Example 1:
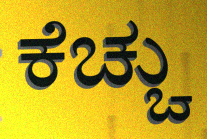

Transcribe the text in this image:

ಕೆಚ್ಚು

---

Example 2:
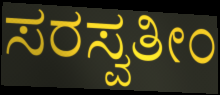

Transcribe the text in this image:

ಸರಸ್ವತೀಂ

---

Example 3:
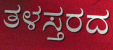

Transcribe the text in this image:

ತಳಸ್ತರದ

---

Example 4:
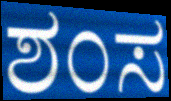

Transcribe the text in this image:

ಶಂಸ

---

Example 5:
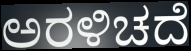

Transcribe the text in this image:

ಅರಳಿಚದೆ